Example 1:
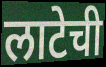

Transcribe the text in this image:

लाटेची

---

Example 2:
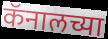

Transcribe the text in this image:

कॅनालच्या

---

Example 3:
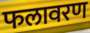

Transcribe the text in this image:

फलावरण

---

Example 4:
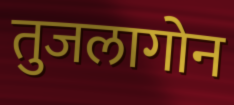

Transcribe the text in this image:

तुजलागोन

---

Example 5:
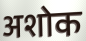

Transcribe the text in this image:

अशोक